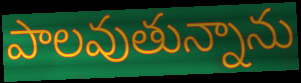
పాలవుతున్నాను